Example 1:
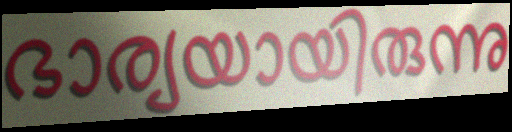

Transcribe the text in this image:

ഭാര്യയായിരുന്നു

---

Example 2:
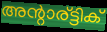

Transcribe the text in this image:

അന്റാര്ട്ടിക്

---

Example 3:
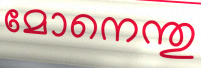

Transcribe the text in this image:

മോനെന്തു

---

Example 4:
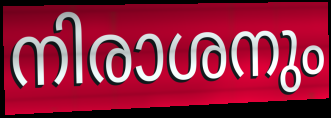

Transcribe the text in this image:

നിരാശനും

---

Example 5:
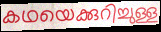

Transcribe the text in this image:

കഥയെക്കുറിച്ചുള്ള